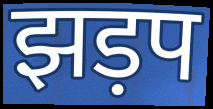
झड़प